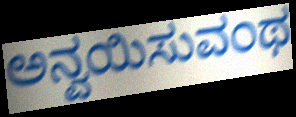
ಅನ್ವಯಿಸುವಂಥ